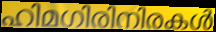
ഹിമഗിരിനിരകൾ